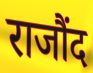
राजौंद